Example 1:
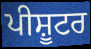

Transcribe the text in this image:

ਪੀਸ਼ੂਟਰ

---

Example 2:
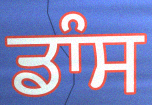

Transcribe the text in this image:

ਡਾੰਸ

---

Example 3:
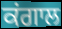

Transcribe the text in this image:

ਕਂਗਾਲ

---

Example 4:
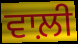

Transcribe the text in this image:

ਵਾਲ਼ੀ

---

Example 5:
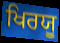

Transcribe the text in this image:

ਖਿਰਯੂ